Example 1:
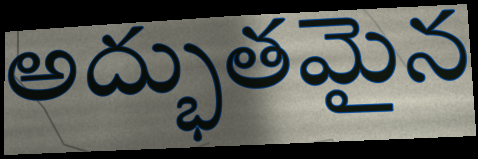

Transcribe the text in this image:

అద్భుతమైన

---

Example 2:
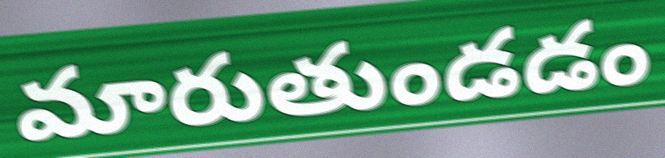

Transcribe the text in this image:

మారుతుండడం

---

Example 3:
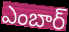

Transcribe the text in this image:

ఎంబార్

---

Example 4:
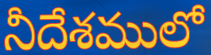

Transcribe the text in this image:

నీదేశములో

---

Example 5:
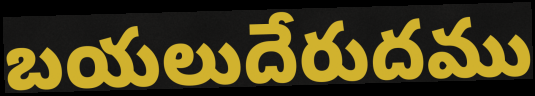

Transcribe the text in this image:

బయలుదేరుదము